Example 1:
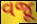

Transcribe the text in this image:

વજૂ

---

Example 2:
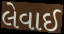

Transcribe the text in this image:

લેવાઈ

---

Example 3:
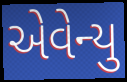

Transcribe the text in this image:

એવેન્યુ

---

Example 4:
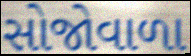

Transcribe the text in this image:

સોજોવાળા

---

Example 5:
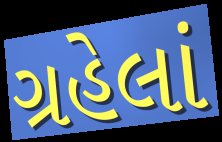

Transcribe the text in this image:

ગ્રહેલાં